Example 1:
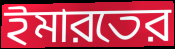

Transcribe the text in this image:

ইমারতের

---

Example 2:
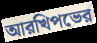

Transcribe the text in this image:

আরখিপভের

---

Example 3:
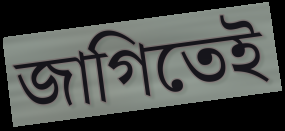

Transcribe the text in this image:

জাগিতেই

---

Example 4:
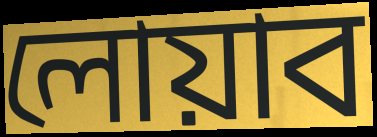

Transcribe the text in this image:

লোয়াব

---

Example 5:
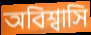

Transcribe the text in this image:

অবিশ্বাসি